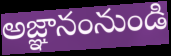
అజ్ఞానంనుండి